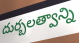
దుర్బలత్వాన్ని